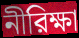
নীরিক্ষা